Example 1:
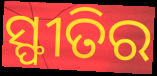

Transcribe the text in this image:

ସ୍ଫୀତିର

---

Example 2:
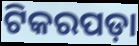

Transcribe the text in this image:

ଟିକରପଡ଼ା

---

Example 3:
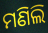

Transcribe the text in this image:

ମଣିଲି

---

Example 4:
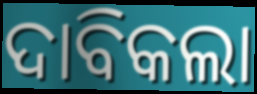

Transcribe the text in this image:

ଦାବିକଲା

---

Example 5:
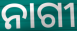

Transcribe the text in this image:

ନାଗୀ